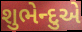
શુભેન્દુએ